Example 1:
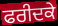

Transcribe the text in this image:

ਫਰੀਦਕੇ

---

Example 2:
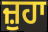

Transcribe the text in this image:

ਜ਼ੁਹਾ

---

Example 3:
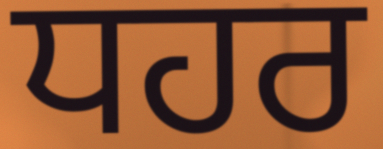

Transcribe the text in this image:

ਧਹਰ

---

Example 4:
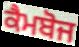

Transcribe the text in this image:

ਕੈਮਬੋਜ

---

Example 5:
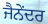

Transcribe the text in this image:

ਜੈਨੇਂਦਰ